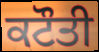
ਕਟੌਤੀ